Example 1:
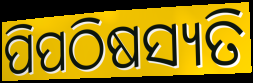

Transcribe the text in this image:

ପିପଠିଷସ୍ଯତି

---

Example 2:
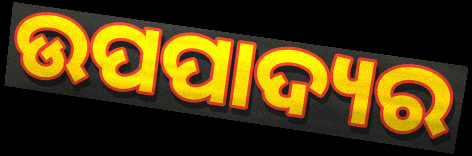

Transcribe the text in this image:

ଉପପାଦ୍ୟର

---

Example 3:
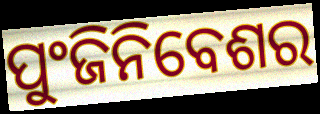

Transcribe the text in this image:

ପୁଂଜିନିବେଶର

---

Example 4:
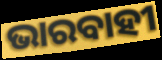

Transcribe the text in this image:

ଭାରବାହୀ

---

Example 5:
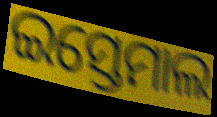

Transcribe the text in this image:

ଇସ୍ତେମାଲ